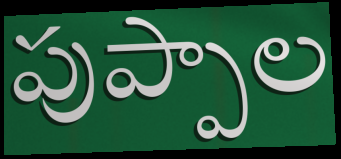
పుప్పాల